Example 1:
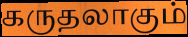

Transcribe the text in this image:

கருதலாகும்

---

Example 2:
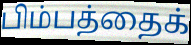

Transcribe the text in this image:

பிம்பத்தைக்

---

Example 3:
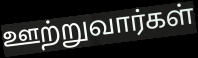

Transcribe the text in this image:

ஊற்றுவார்கள்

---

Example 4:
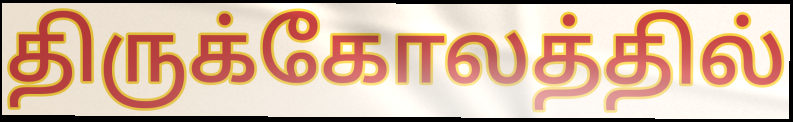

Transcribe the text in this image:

திருக்கோலத்தில்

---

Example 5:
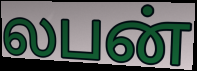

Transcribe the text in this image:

லபன்